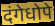
दंगेधोपे